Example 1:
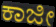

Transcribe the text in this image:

ಕಾಜೀ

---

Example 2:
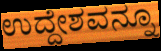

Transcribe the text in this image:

ಉದ್ದೇಶವನ್ನೂ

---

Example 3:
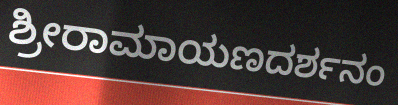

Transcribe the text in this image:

ಶ್ರೀರಾಮಾಯಣದರ್ಶನಂ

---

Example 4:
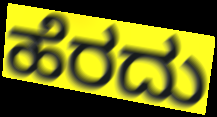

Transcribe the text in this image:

ಹೆರದು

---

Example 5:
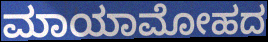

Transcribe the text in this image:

ಮಾಯಾಮೋಹದ